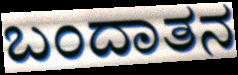
ಬಂದಾತನ